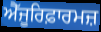
ਐੱਜੂਰਿਫ਼ਾਰਮਜ਼